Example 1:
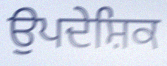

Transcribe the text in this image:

ਉਪਦੇਸ਼ਿਕ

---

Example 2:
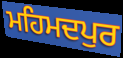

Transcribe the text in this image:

ਮਹਿਮਦਪੁਰ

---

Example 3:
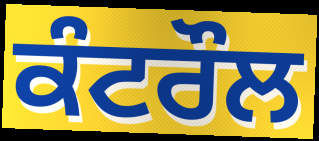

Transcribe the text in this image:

ਕੰਟਰੌਲ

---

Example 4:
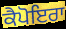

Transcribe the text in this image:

ਕੈਪੋਇਰਾ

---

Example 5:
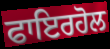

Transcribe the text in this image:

ਫਾਇਰਹੋਲ